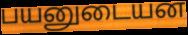
பயனுடையன